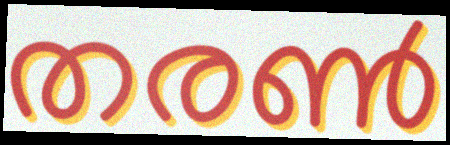
തരൺ